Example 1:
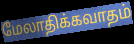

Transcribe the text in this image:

மேலாதிக்கவாதம்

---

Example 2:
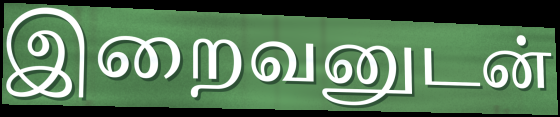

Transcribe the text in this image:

இறைவனுடன்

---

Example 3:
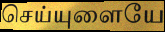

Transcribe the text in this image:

செய்யுளையே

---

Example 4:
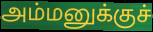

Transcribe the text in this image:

அம்மனுக்குச்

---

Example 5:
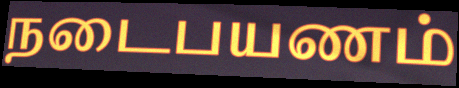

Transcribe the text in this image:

நடைபயணம்